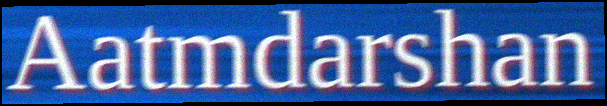
Aatmdarshan